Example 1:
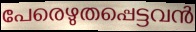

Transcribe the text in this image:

പേരെഴുതപ്പെട്ടവൻ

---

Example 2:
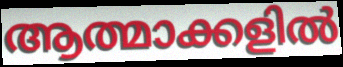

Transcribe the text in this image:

ആത്മാക്കളിൽ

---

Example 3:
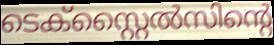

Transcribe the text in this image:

ടെക്സ്റ്റൈൽസിന്റെ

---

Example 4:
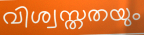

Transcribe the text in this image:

വിശ്വസ്തതയും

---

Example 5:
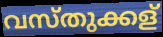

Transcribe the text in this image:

വസ്തുക്കള്